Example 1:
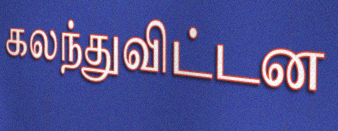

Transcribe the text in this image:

கலந்துவிட்டன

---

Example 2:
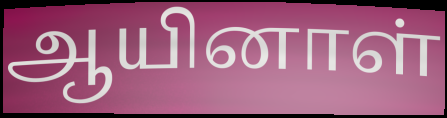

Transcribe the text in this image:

ஆயினாள்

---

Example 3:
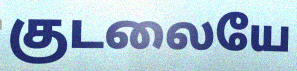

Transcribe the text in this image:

குடலையே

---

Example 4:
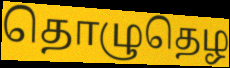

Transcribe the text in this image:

தொழுதெழ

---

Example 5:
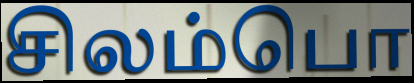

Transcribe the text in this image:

சிலம்பொ